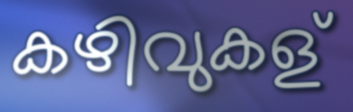
കഴിവുകള്